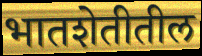
भातशेतीतील